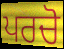
ਪਰਚੋ